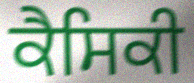
ਕੈਸਿਕੀ